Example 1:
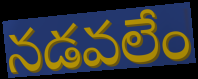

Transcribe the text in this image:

నడవలేం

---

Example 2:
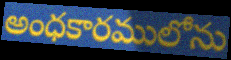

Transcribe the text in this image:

అంధకారములోను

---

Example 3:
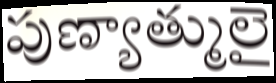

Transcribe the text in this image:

పుణ్యాత్ములై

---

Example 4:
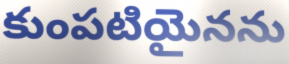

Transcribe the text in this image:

కుంపటియైనను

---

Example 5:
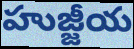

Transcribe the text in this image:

హుజ్జీయ